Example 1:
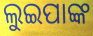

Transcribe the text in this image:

ଲୁଇପାଙ୍କ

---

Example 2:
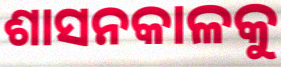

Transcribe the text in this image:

ଶାସନକାଳକୁ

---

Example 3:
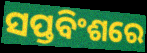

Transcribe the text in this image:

ସପ୍ତବିଂଶରେ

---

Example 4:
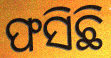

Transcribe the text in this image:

ଫସିଛି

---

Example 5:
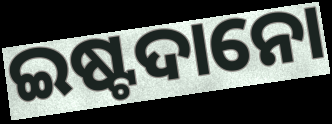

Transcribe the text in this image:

ଇଷ୍ଟଦାନୋ